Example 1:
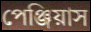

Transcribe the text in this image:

পেঞ্জিয়াস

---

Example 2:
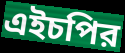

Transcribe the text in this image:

এইচপির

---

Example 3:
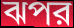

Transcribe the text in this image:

ঝপর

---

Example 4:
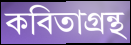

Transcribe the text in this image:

কবিতাগ্রন্থ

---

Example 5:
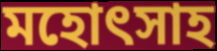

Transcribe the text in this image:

মহোৎসাহ